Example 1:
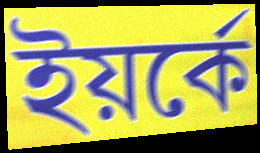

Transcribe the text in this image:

ইয়র্কে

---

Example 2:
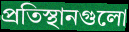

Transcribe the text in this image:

প্রতিস্থানগুলো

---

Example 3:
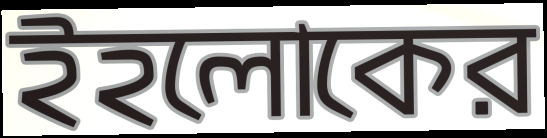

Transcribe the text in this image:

ইহলোকের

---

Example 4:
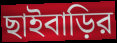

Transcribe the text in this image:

ছাইবাড়ির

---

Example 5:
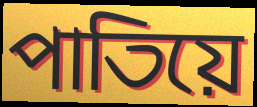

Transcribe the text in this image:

পাতিয়ে